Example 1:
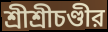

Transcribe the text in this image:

শ্রীশ্রীচণ্ডীর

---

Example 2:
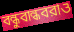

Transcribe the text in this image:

বন্ধুবান্ধবরাও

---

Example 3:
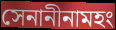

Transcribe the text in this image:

সেনানীনামহং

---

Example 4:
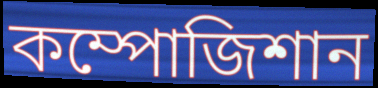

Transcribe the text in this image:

কম্পোজিশান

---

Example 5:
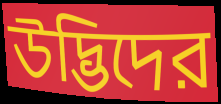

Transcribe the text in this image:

উদ্ভিদের